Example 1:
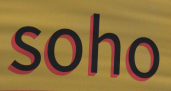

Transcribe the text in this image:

soho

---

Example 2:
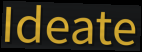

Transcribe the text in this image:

Ideate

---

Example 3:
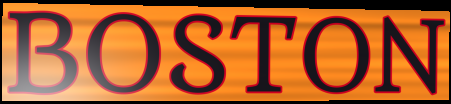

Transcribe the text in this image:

BOSTON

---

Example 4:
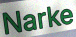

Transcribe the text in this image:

Narke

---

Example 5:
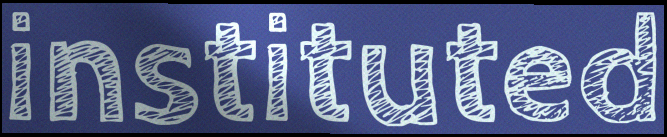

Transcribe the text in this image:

instituted